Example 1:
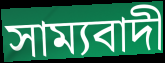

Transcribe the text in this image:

সাম্যবাদী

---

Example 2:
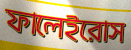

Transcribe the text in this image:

ফালেইরোস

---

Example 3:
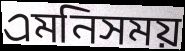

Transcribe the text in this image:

এমনিসময়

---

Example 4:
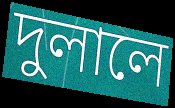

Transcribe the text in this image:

দুলালে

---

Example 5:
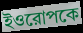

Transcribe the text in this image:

ইওরোপকে